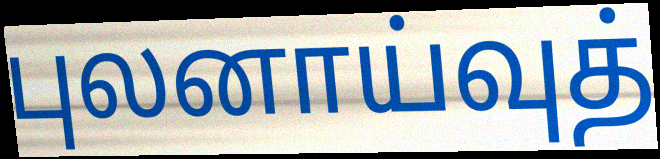
புலனாய்வுத்